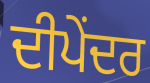
ਦੀਪੇਂਦਰ